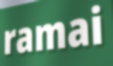
ramai